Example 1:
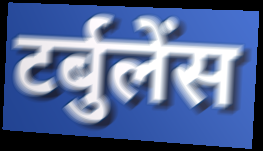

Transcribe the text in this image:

टर्बुलेंस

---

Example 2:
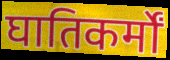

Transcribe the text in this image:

घातिकर्मों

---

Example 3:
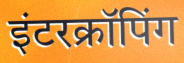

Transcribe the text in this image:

इंटरक्रॉपिंग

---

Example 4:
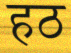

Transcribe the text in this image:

हठ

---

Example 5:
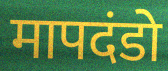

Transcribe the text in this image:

मापदंडो